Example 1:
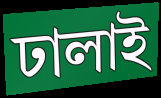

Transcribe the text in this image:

ঢালাই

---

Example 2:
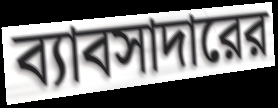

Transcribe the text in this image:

ব্যাবসাদারের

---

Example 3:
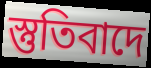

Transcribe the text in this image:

স্তুতিবাদে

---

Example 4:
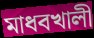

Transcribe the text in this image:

মাধবখালী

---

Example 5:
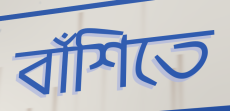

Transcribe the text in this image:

বাঁশিতে